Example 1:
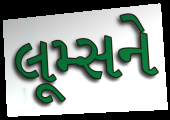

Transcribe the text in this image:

લૂમ્સને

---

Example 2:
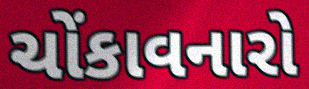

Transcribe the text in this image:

ચોંકાવનારો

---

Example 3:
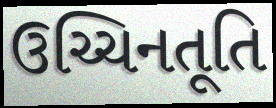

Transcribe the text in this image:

ઉચ્ચિનતૂતિ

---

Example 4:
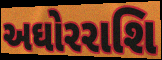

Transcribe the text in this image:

અઘોરરાશિ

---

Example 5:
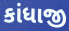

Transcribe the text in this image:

કાંધાજી